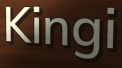
Kingi